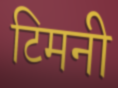
टिमनी